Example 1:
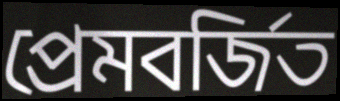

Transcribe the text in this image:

প্রেমবর্জিত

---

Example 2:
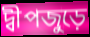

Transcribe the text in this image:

দ্বীপজুড়ে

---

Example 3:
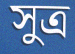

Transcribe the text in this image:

সুত্র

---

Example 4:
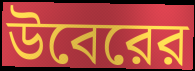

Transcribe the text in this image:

উবেরের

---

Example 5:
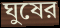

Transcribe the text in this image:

ঘুষের